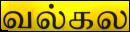
வல்கல